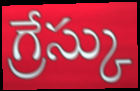
గ్రేస్కు